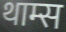
थाम्स